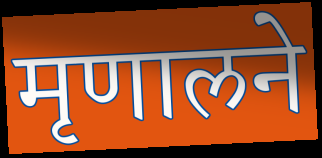
मृणालने